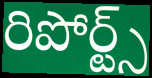
రిపోర్ట్స్